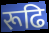
रूढि